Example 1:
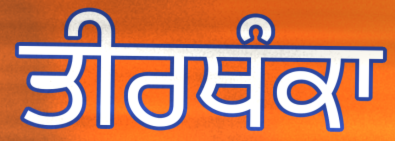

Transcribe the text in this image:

ਤੀਰਥੰਕਾ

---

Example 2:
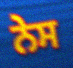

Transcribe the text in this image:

ਨੇਸ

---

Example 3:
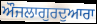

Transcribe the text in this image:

ਔਜਲਾਗੁਰਦੁਆਰਾ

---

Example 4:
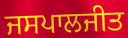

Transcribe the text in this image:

ਜਸਪਾਲਜੀਤ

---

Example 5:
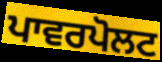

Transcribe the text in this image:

ਪਾਵਰਪੋਲਟ